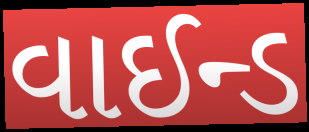
વાઈન્ડ